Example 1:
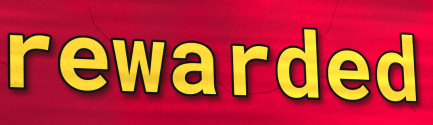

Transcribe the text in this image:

rewarded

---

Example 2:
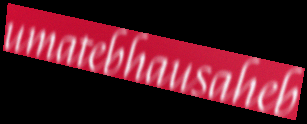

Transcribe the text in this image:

umatebhausaheb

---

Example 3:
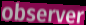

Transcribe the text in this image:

observer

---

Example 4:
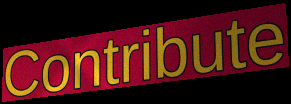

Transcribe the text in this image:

Contribute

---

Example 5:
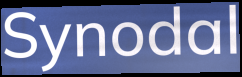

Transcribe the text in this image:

Synodal